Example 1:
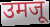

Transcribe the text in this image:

उमजू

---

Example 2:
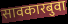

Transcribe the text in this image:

सावकारबुवा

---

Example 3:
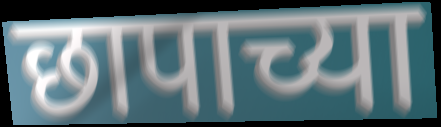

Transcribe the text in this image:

छापाच्या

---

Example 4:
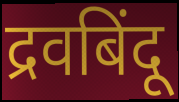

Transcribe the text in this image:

द्रवबिंदू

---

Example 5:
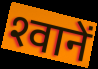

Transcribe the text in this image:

श्वानें